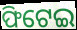
ଫିଟେଇ